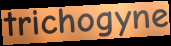
trichogyne